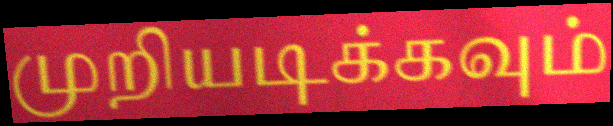
முறியடிக்கவும்